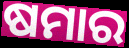
ଷମାର